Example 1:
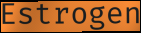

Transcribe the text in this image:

Estrogen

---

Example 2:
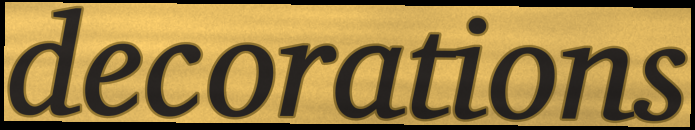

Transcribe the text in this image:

decorations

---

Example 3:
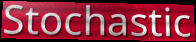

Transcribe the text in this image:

Stochastic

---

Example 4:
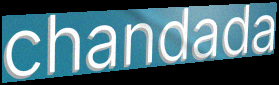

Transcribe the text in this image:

chandada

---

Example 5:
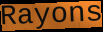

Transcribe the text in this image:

Rayons